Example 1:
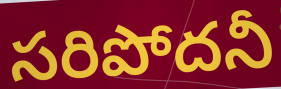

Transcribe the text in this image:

సరిపోదనీ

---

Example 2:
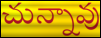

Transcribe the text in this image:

చున్నావు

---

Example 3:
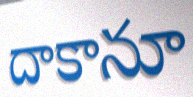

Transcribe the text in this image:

దాకానూ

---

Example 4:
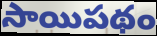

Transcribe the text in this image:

సాయిపథం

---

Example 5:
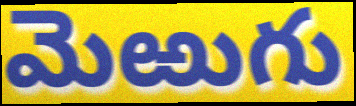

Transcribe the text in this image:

మెఱుగు